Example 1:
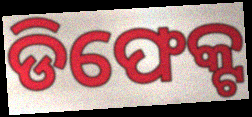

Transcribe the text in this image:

ଡିଫେକ୍ଟ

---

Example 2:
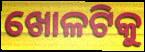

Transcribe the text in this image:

ଖୋଳଟିକୁ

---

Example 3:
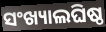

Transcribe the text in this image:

ସଂଖ୍ୟାଲଘିଷ୍ଠ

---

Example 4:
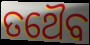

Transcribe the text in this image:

ତଥୈବ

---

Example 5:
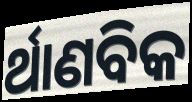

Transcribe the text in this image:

ର୍ଥାଣବିକ